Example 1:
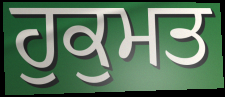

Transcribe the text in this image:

ਹੁਕੁਮਤ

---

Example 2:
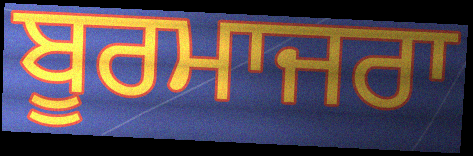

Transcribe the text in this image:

ਬੂਰਮਾਜਰਾ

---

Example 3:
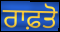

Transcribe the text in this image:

ਰਾਫ਼ਤੋ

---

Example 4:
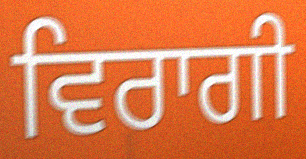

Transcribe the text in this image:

ਵਿਰਾਗੀ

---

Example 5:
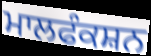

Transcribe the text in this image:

ਮਾਲਫੰਕਸ਼ਨ